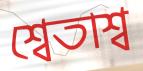
শ্বেতাশ্ব